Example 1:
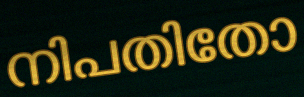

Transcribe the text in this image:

നിപതിതോ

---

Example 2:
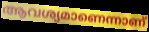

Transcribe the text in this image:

ആവശ്യമാണെന്നാണ്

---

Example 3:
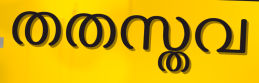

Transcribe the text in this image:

തതസ്തവ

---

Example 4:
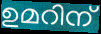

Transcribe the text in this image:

ഉമറിന്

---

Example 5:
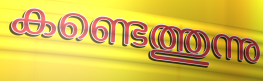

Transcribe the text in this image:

കണ്ടെത്തുന്നു